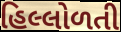
હિલ્લોળતી